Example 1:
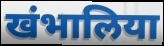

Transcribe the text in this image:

खंभालिया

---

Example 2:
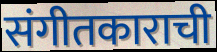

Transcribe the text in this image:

संगीतकाराची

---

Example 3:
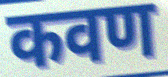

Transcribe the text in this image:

कवण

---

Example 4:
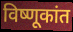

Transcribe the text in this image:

विष्णूकांत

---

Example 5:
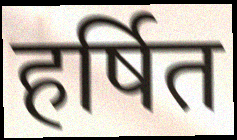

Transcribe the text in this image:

हर्षित